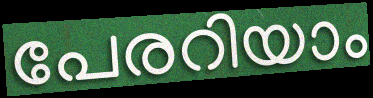
പേരറിയാം